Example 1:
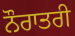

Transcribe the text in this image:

ਨੌਰਾਤਰੀ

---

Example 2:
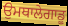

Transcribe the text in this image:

ਉਮਥਾਲੇਗਾਡੂ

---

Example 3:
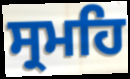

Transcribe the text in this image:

ਸ੍ਰਮਹਿ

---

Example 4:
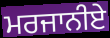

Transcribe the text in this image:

ਮਰਜਾਨੀਏ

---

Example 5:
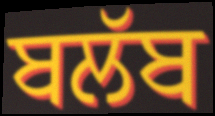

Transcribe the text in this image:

ਬਲੱਬ